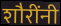
शौरींनी